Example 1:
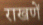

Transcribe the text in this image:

राखणें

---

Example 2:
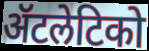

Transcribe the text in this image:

ॲटलेटिको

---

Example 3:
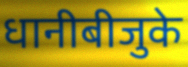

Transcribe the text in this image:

धानीबीजुके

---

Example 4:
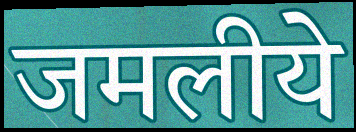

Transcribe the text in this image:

जमलीये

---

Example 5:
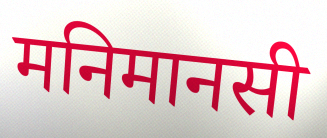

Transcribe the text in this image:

मनिमानसी